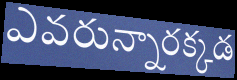
ఎవరున్నారక్కడ